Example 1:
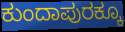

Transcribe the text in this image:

ಕುಂದಾಪುರಕ್ಕೂ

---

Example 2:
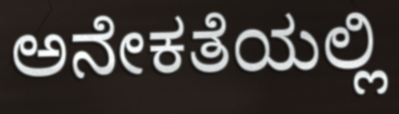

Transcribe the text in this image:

ಅನೇಕತೆಯಲ್ಲಿ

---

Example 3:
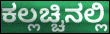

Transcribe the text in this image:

ಕಲ್ಲಚ್ಚಿನಲ್ಲಿ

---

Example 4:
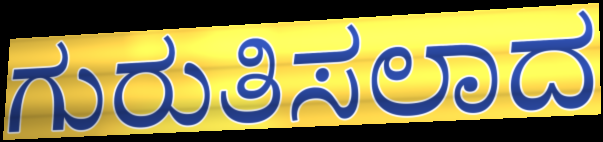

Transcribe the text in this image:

ಗುರುತಿಸಲಾದ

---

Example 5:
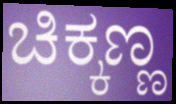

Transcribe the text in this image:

ಚಿಕ್ಕಣ್ಣ